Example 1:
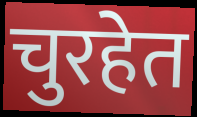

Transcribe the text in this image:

चुरहेत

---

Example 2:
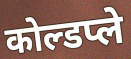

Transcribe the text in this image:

कोल्डप्ले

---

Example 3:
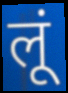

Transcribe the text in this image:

लूं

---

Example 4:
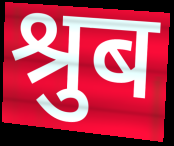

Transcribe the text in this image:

श्रुब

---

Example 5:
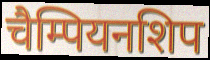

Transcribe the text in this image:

चैम्पियनशिप